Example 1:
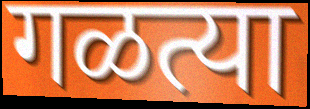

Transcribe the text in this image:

गळत्या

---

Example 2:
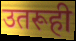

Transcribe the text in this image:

उतरूही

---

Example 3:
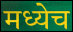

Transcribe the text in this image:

मध्येच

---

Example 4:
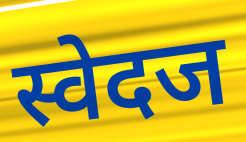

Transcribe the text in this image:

स्वेदज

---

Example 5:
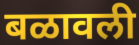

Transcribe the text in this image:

बळावली